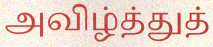
அவிழ்த்துத்